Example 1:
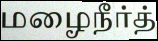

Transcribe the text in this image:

மழைநீர்த்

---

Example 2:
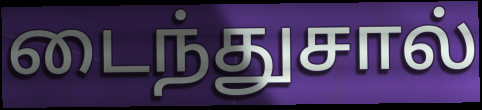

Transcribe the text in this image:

டைந்துசால்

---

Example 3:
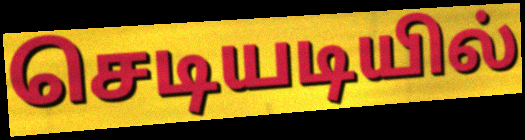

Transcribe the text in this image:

செடியடியில்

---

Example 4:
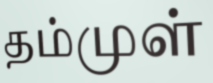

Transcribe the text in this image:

தம்முள்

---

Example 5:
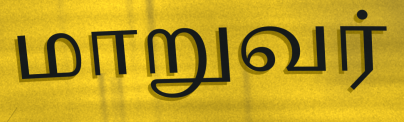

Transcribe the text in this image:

மாறுவர்